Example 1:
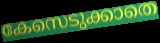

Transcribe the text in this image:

കേസെടുക്കാതെ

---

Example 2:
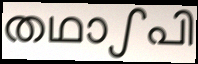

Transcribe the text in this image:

തഥാഽപി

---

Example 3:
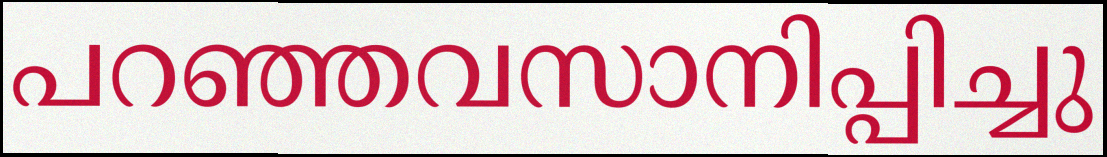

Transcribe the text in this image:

പറഞ്ഞവസാനിപ്പിച്ചു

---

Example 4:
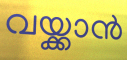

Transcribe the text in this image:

വയ്ക്കാൻ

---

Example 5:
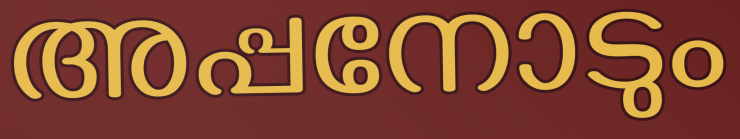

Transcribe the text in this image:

അപ്പനോടും